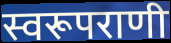
स्वरूपराणी